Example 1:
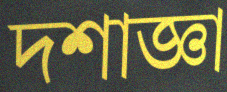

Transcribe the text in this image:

দশাজ্ঞা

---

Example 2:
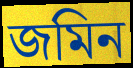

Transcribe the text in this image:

জমিন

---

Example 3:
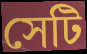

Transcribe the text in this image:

সেটি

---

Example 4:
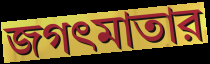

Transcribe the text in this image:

জগৎমাতার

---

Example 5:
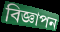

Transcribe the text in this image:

বিজ্ঞাপন